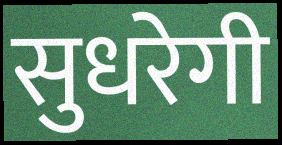
सुधरेगी